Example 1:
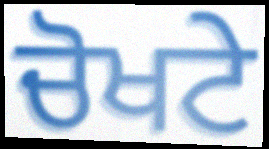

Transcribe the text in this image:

ਚੋਖਟੇ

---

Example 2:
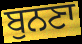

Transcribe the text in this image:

ਬੁਨਣਾ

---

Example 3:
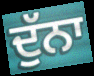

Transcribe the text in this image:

ਦੁੱਨਾ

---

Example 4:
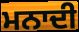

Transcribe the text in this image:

ਮਨਾਦੀ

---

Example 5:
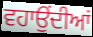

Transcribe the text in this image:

ਵਹਾਉਂਦੀਆਂ